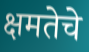
क्षमतेचे